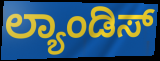
ಲ್ಯಾಂಡಿಸ್